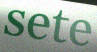
sete